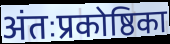
अंतःप्रकोष्ठिका